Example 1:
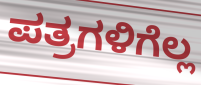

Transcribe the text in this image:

ಪತ್ರಗಳಿಗೆಲ್ಲ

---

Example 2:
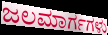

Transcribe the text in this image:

ಜಲಮಾರ್ಗಗಳು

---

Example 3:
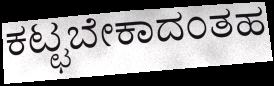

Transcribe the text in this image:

ಕಟ್ಟಬೇಕಾದಂತಹ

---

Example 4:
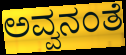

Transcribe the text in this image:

ಅವ್ವನಂತೆ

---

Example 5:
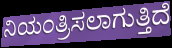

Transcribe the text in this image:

ನಿಯಂತ್ರಿಸಲಾಗುತ್ತಿದೆ